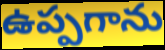
ఉప్పగాను